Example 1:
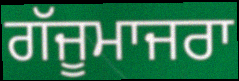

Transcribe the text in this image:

ਗੱਜੂਮਾਜਰਾ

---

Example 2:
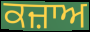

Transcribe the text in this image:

ਕਜ਼ਾਅ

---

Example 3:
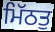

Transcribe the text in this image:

ਮਿੱਠਤੁ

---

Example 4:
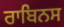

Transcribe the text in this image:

ਰਾਬਿਨਸ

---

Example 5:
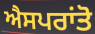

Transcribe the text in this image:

ਐਸਪਰਾਂਤੋ